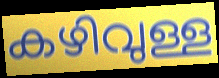
കഴിവുള്ള